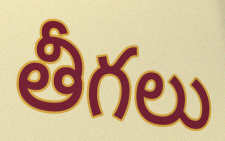
తీగలు